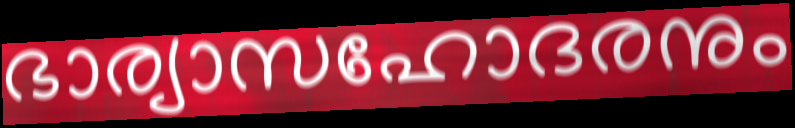
ഭാര്യാസഹോദരനും